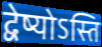
द्वेष्योऽस्ति